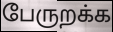
பேருறக்க